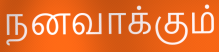
நனவாக்கும்